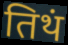
तिथं